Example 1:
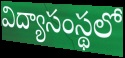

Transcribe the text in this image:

విద్యాసంస్థలో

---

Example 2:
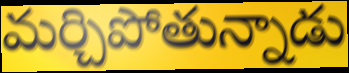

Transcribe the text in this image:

మర్చిపోతున్నాడు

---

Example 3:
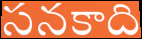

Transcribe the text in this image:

సనకాది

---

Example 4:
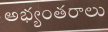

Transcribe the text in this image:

అభ్యంతరాలు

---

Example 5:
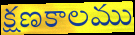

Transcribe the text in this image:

క్షణకాలము